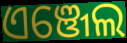
ଏଞ୍ଜେଲ